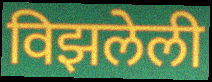
विझलेली